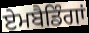
ਏਮਬੈਡਿੰਗਾਂ